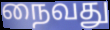
நைவது